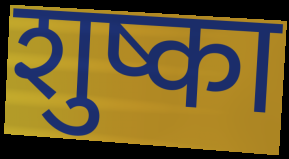
शुष्का